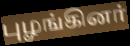
புழங்கினர்